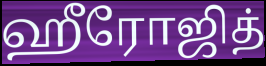
ஹீரோஜித்